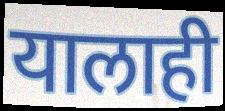
यालाही